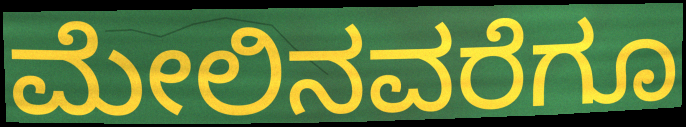
ಮೇಲಿನವರೆಗೂ